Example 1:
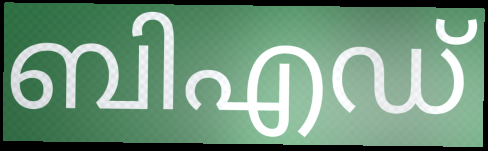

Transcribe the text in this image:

ബിഎഡ്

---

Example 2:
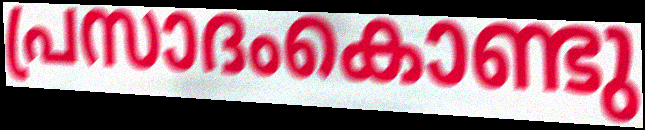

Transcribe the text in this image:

പ്രസാദംകൊണ്ടു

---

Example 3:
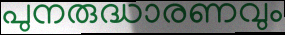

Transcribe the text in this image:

പുനരുദ്ധാരണവും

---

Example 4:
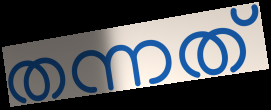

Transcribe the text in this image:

തന്നത്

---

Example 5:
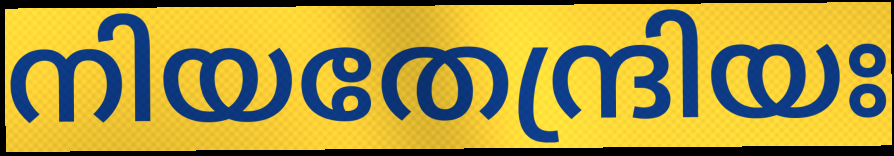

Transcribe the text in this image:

നിയതേന്ദ്രിയഃ